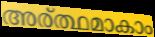
അര്ത്ഥമാകാം